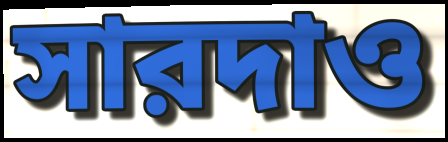
সারদাও